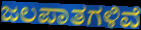
ಜಲಪಾತಗಳಿವೆ